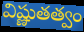
విష్ణుతత్వం